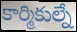
కార్మికుల్నే